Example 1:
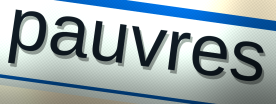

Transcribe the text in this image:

pauvres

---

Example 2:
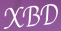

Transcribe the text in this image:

XBD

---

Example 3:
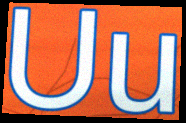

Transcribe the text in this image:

Uu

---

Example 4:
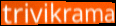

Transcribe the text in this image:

trivikrama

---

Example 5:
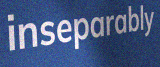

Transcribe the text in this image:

inseparably